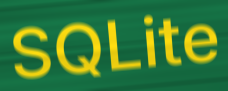
SQLite